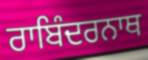
ਰਾਬਿੰਦਰਨਾਥ